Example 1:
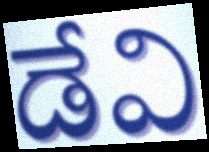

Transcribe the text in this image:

డేవి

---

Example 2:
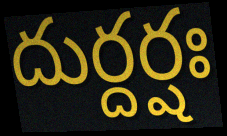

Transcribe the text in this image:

దుర్దర్షః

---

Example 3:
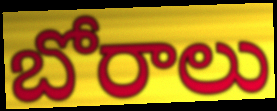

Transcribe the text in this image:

బోరాలు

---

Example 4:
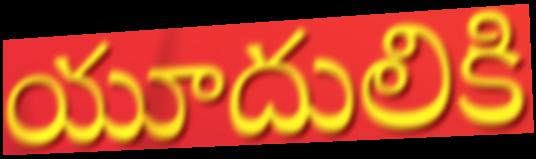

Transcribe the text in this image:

యూదులికి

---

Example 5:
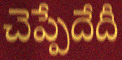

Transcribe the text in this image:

చెప్పేదేదీ